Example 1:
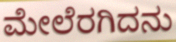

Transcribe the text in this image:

ಮೇಲೆರಗಿದನು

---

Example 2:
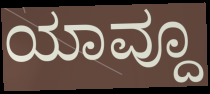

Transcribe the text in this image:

ಯಾವ್ದೂ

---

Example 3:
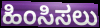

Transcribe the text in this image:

ಹಿಂಸಿಸಲು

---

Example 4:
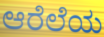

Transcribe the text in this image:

ಆರೆಲೆಯ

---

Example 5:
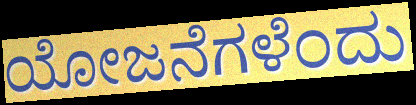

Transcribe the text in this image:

ಯೋಜನೆಗಳೆಂದು